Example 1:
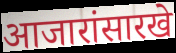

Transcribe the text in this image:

आजारांसारखे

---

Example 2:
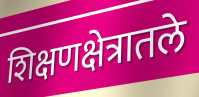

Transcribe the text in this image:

शिक्षणक्षेत्रातले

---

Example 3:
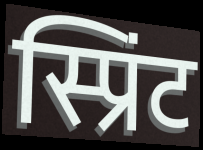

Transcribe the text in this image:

स्प्रिंट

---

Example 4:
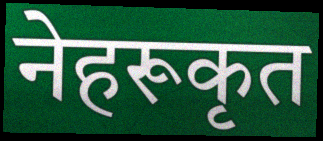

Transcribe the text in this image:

नेहरूकृत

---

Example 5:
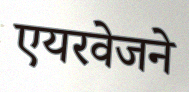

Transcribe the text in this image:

एयरवेजने